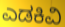
ಎಡಕಿವಿ